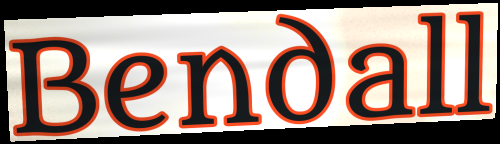
Bendall